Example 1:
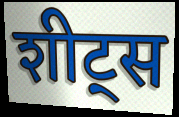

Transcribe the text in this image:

शीट्स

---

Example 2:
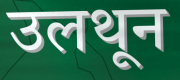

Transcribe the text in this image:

उलथून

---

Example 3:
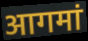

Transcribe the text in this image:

आगमां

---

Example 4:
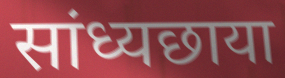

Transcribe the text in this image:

सांध्यछाया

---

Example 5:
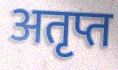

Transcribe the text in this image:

अतृप्त